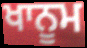
ਖਾਨੂਮ